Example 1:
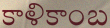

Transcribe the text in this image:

కాళికాంబ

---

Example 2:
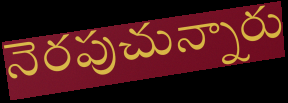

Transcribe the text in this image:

నెరపుచున్నారు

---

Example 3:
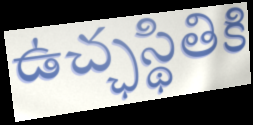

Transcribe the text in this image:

ఉచ్ఛస్థితికి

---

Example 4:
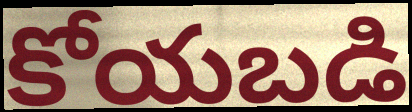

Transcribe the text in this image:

కోయబడి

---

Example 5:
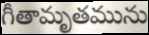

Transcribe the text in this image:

గీతామృతమును